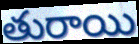
తురాయి